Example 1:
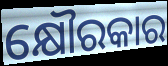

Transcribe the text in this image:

କ୍ଷୌରକାର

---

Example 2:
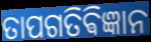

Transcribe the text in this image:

ତାପଗତିଵିଜ୍ଞାନ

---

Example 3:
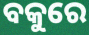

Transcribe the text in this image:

ବକୁରେ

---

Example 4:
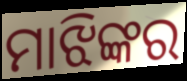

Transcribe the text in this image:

ମାଝିଙ୍କର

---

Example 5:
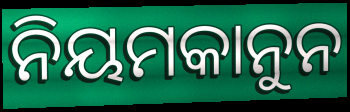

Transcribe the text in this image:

ନିୟମକାନୁନ